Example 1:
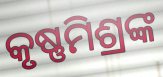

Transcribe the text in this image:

କୃଷ୍ଣମିଶ୍ରଙ୍କ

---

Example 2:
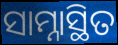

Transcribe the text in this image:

ସାମ୍ନାସ୍ଥିତ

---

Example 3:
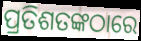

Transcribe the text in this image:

ପ୍ରତିଶତଙ୍କଠାରେ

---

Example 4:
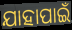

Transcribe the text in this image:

ଯାହାପାଇଁ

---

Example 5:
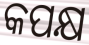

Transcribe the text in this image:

କପକ୍ଷ